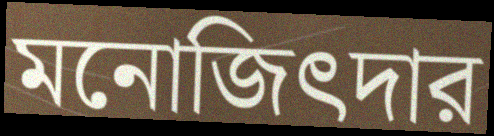
মনোজিৎদার